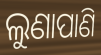
ଲୁଣାପାଣି